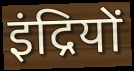
इंद्रियों